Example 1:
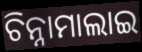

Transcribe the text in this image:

ଚିନ୍ନାମାଲାଇ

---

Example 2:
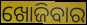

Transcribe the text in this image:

ଖୋଜିବାର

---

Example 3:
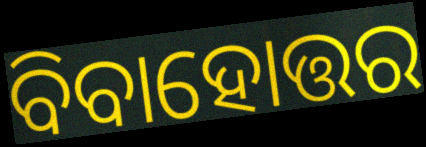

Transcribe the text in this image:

ବିବାହୋତ୍ତର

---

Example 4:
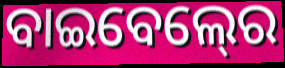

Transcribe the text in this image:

ବାଇବେଲ୍‍ରେ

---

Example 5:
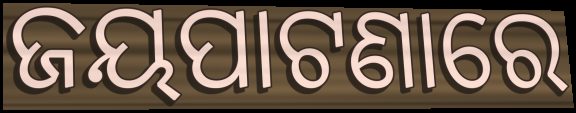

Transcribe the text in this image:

ଜୟପାଟଣାରେ